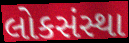
લોકસંસ્થા